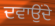
ਦਵਾਉਂਦੇ